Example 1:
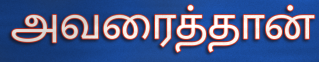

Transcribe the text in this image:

அவரைத்தான்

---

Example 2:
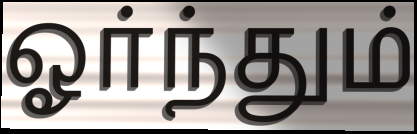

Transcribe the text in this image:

ஓர்ந்தும்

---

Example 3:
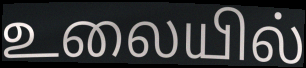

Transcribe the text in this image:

உலையில்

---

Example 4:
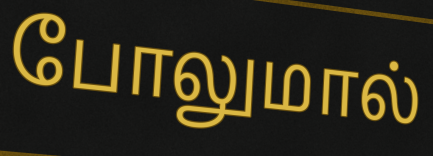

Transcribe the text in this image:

போலுமால்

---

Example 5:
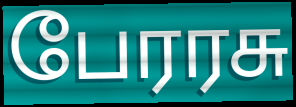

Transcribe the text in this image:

பேரரசு